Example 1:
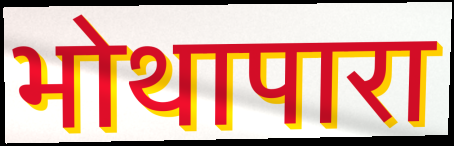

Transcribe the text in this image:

भोथापारा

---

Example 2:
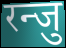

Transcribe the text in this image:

रन्जु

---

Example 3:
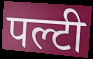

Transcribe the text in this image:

पल्टी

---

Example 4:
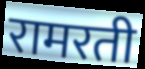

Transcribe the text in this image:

रामरती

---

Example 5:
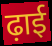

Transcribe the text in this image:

ढ़ाई